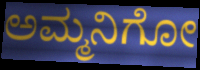
ಅಮ್ಮನಿಗೋ